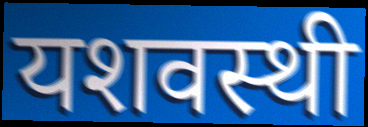
यशवस्थी